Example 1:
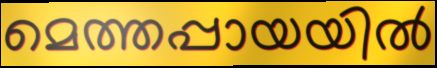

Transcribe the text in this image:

മെത്തപ്പായയിൽ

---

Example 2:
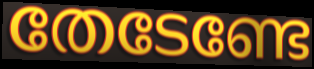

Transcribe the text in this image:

തേടേണ്ടേ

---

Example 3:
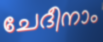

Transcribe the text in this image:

ചേദീനാം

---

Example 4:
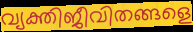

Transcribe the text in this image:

വ്യക്തിജീവിതങ്ങളെ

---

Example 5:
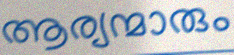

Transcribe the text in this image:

ആര്യന്മാരും